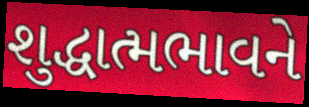
શુદ્ધાત્મભાવને